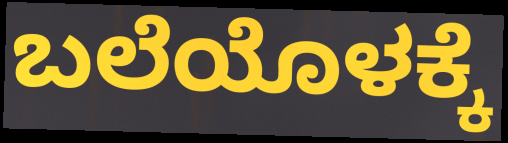
ಬಲೆಯೊಳಕ್ಕೆ